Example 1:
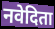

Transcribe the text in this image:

नवेदिता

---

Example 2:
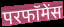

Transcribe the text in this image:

परफॉमेंस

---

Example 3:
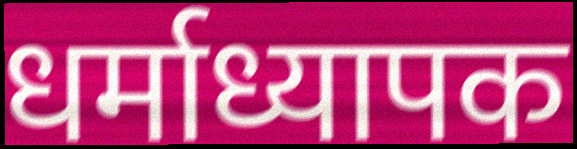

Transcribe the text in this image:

धर्माध्यापक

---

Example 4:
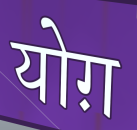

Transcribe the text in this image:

योग़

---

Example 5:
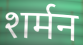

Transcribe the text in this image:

शर्मन